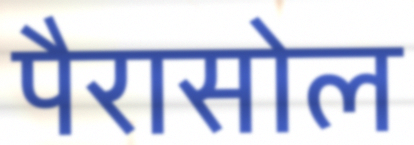
पैरासोल